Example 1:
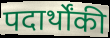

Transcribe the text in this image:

पदार्थोंकी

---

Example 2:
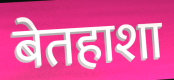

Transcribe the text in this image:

बेतहाशा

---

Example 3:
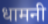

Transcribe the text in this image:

धामनी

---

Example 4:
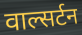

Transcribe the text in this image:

वाल्सर्टन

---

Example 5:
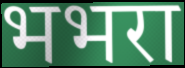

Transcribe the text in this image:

भभरा